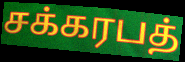
சக்கரபத்